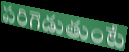
పరిగెడుతుంటే